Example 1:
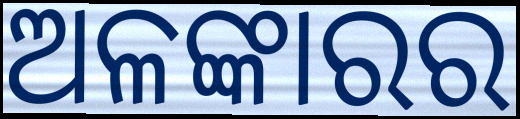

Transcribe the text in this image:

ଅଳଙ୍କାରର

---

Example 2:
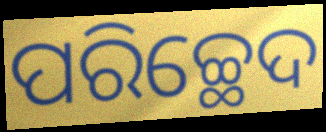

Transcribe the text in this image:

ପରିଚ୍ଛେଦ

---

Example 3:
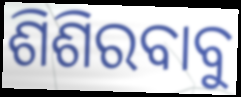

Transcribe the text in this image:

ଶିଶିରବାବୁ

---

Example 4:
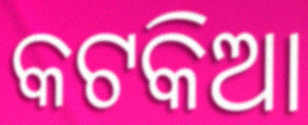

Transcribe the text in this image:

କଟକିଆ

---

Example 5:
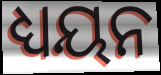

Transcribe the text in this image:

ଧ୍ୟୟନ